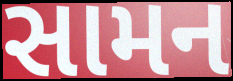
સામન